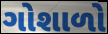
ગોશાળો